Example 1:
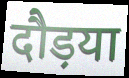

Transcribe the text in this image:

दौड़या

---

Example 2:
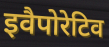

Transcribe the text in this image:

इवैपोरेटिव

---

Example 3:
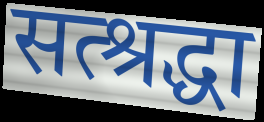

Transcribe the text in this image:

सत्श्रद्धा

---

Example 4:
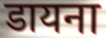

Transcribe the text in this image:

डायना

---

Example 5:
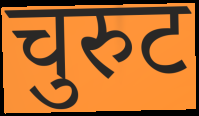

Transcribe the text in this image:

चुरुट